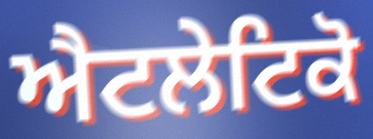
ਐਟਲੇਟਿਕੋ